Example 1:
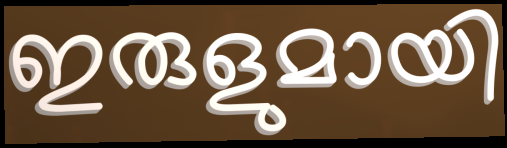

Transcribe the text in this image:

ഇരുളുമായി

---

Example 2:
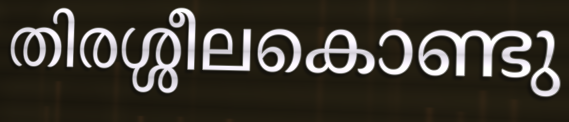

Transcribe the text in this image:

തിരശ്ശീലകൊണ്ടു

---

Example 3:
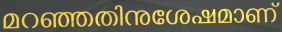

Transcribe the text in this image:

മറഞ്ഞതിനുശേഷമാണ്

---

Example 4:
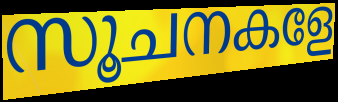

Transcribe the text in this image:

സൂചനകളേ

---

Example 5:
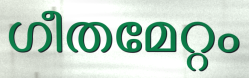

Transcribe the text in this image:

ഗീതമേറ്റം